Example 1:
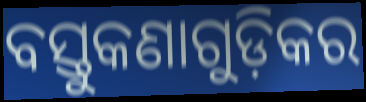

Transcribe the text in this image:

ବସ୍ତୁକଣାଗୁଡ଼ିକର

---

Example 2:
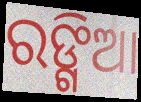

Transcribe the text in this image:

ରଙ୍ଗିଆ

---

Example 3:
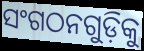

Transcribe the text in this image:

ସଂଗଠନଗୁଡ଼ିକୁ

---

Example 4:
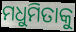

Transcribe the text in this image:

ମଧୁମିତାକୁ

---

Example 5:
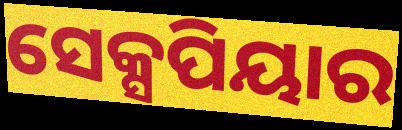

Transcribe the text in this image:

ସେକ୍ସପିୟାର